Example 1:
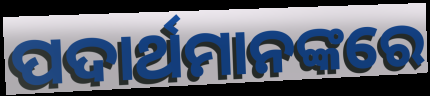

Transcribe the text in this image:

ପଦାର୍ଥମାନଙ୍କରେ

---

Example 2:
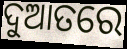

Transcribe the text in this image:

ଦୁଆତରେ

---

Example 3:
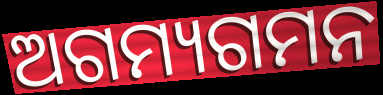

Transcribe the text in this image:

ଅଗମ୍ୟଗମନ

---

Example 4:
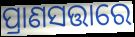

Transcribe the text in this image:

ପ୍ରାଣସତ୍ତାରେ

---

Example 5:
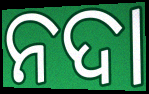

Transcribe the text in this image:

ନଦା